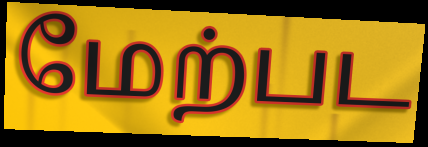
மேற்பட